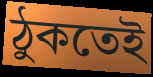
ঠুকতেই